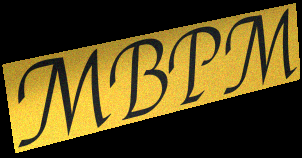
MBPM